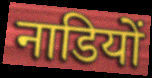
नाडियों